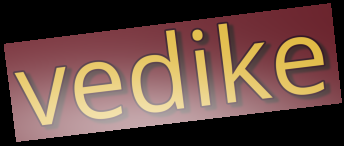
vedike